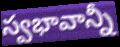
స్వభావాన్నీ